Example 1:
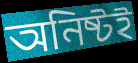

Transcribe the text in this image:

অনিষ্টই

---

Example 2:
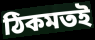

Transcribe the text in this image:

ঠিকমতই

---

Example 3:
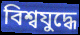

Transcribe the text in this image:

বিশ্বযুদ্ধে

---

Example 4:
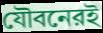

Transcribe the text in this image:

যৌবনেরই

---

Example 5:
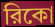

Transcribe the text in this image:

রিকো